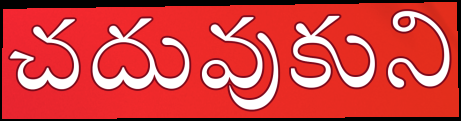
చదువుకుని